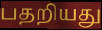
பதறியது